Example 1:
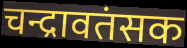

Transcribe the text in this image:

चन्द्रावतंसक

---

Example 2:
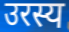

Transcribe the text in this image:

उरस्य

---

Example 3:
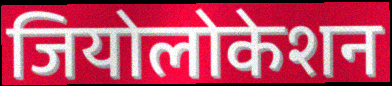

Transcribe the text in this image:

जियोलोकेशन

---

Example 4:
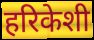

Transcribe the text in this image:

हरिकेशी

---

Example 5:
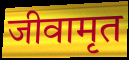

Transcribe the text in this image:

जीवामृत